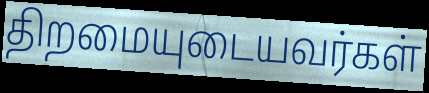
திறமையுடையவர்கள்